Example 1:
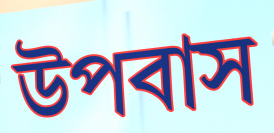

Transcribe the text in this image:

উপবাস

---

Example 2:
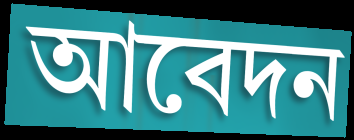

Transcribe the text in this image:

আবেদন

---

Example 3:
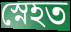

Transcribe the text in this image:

স্নেহত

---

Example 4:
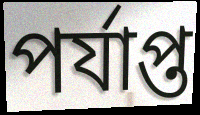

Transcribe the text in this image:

পৰ্যাপ্ত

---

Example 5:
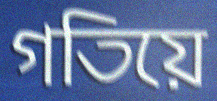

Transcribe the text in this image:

গতিয়ে